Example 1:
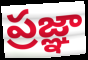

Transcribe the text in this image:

ప్రజ్ఞా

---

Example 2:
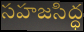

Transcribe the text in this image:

సహజసిద్ధ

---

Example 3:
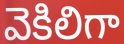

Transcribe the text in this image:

వెకిలిగా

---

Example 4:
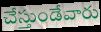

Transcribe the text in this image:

చేస్తుండేవారు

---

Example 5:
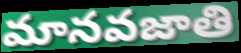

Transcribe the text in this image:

మానవజాతి